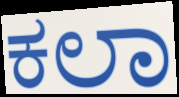
ಕಲಾ